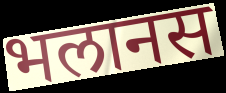
भलानस